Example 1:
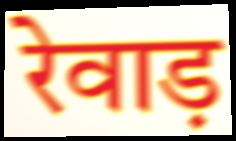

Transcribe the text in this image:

रेवाड़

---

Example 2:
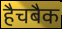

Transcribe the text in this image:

हैचबैक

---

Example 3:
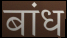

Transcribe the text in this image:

बांध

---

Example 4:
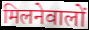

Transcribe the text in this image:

मिलनेवालों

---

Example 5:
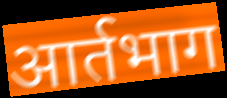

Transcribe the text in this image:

आर्तभाग